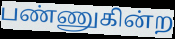
பண்ணுகின்ற